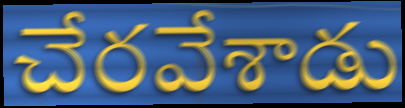
చేరవేశాడు